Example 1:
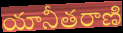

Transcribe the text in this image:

యానీతరాణి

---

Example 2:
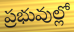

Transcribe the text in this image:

ప్రభువుల్లో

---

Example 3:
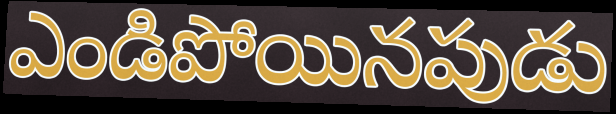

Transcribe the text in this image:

ఎండిపోయినపుడు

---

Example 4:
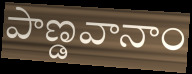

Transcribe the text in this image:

పాణ్డవానాం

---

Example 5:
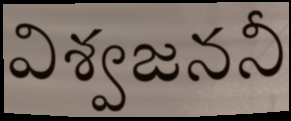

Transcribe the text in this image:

విశ్వజననీ